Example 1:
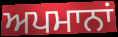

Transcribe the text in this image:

ਅਪਮਾਨਾਂ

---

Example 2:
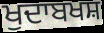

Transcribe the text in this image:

ਖੁਦਾਬਖਸ਼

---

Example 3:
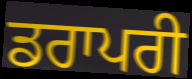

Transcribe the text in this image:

ਡਰਾਪਰੀ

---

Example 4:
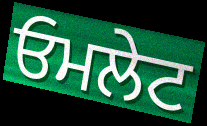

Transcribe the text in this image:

ਓਮਲੇਟ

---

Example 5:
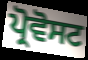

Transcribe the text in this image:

ਪ੍ਰੋਵੋਸਟ